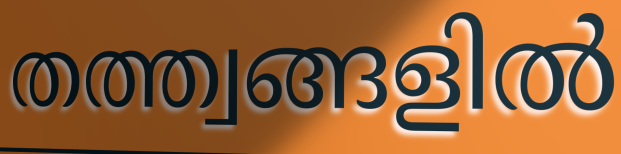
തത്ത്വങ്ങളിൽ